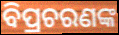
ବିପ୍ରଚରଣଙ୍କ